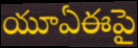
యూఏఈపై